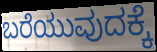
ಬರೆಯುವುದಕ್ಕೆ